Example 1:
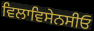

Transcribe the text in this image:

ਵਿਲਾਵਿਸੇਨਸੀਓ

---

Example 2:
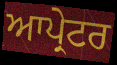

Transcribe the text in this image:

ਆਪ੍ਰੇਟਰ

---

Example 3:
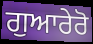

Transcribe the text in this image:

ਗੁਆਰੇਰੋ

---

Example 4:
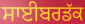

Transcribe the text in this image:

ਸਾਈਬਰਡੱਕ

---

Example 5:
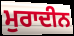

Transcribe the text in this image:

ਮੁਰਾਦੀਨ